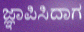
ಜ್ಞಾಪಿಸಿದಾಗ